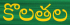
కొలతల